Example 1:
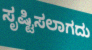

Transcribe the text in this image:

ಸೃಷ್ಟಿಸಲಾಗದು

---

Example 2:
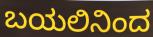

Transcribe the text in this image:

ಬಯಲಿನಿಂದ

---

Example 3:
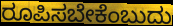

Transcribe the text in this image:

ರೂಪಿಸಬೇಕೆಂಬುದು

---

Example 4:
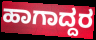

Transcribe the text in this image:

ಹಾಗಾದ್ದರ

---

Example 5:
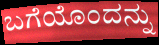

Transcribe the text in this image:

ಬಗೆಯೊಂದನ್ನು